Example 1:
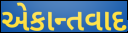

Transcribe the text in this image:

એકાન્તવાદ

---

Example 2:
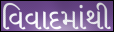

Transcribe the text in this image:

વિવાદમાંથી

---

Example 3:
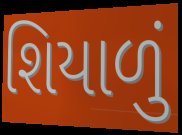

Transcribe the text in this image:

શિયાળું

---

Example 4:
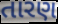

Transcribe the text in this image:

તારણ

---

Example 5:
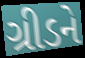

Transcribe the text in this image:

ગ્રીડને